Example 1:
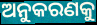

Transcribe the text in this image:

ଅନୁକରଣକୁ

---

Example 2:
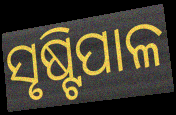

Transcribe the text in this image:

ସୃଷ୍ଟିପାଳ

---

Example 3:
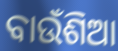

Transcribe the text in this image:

ବାଉଁଶିଆ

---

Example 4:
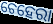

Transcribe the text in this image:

ଚେହେରା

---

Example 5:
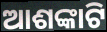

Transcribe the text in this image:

ଆଶଙ୍କାଟି